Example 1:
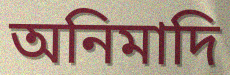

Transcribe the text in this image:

অনিমাদি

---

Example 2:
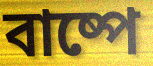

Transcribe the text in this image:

বাষ্পে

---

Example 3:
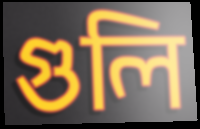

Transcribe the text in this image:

গুলি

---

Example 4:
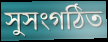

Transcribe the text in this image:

সুসংগঠিত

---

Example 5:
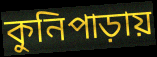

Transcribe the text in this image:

কুনিপাড়ায়